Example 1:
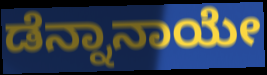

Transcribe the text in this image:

ಡೆನ್ನಾನಾಯೇ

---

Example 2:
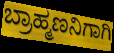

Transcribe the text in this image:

ಬ್ರಾಹ್ಮಣನಿಗಾಗಿ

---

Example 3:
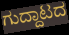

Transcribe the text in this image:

ಗುದ್ದಾಟದ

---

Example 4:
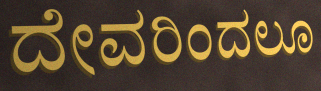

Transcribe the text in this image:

ದೇವರಿಂದಲೂ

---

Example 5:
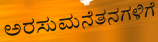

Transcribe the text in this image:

ಅರಸುಮನೆತನಗಳಿಗೆ